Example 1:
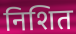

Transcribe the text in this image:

निशित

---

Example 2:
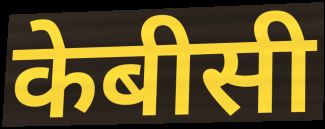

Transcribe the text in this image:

केबीसी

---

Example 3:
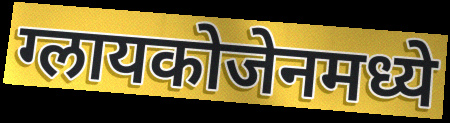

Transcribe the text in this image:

ग्लायकोजेनमध्ये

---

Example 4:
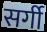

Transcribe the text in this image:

सर्गी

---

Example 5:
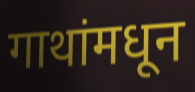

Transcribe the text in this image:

गाथांमधून